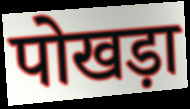
पोखड़ा